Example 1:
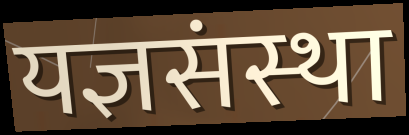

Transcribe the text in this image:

यज्ञसंस्था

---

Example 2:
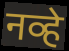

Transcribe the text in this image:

नव्हे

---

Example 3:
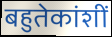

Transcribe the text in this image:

बहुतेकांशीं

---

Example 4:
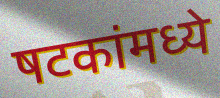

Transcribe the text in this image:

षटकांमध्ये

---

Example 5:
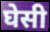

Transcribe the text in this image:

घेसी